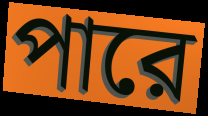
পারে